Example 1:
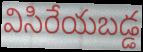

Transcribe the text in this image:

విసిరేయబడ్డ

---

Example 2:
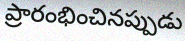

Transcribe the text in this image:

ప్రారంభించినప్పుడు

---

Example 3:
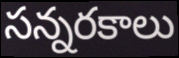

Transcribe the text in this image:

సన్నరకాలు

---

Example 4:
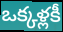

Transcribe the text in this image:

ఒక్కళ్లకీ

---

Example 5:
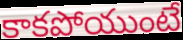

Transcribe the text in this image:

కాకపోయుంటే